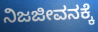
ನಿಜಜೀವನಕ್ಕೆ